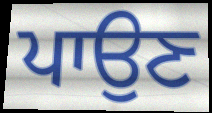
ਪਾਉਣ